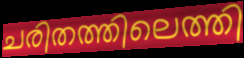
ചരിതത്തിലെത്തി